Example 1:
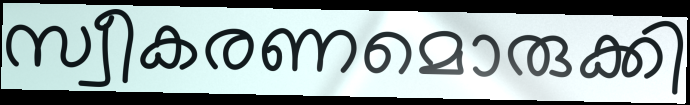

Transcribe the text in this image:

സ്വീകരണമൊരുക്കി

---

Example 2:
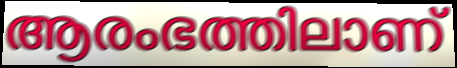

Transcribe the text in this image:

ആരംഭത്തിലാണ്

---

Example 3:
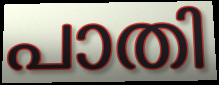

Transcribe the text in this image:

പാതി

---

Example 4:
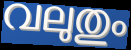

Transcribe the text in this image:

വലുതും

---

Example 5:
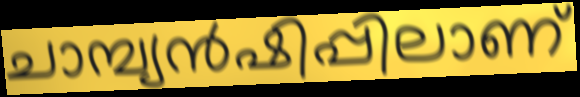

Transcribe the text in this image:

ചാമ്പ്യൻഷിപ്പിലാണ്